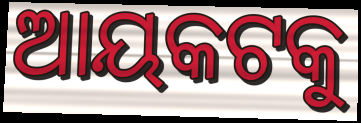
ଆୟକଟକୁ